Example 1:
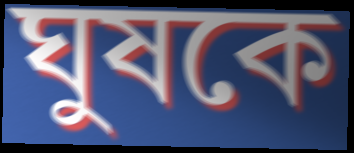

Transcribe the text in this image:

ঘুষকে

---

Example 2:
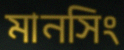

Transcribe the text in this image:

মানসিং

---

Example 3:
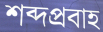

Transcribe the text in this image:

শব্দপ্রবাহ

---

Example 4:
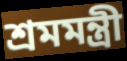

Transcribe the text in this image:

শ্রমমন্ত্রী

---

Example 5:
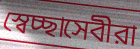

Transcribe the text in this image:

স্বেচ্ছাসেবীরা